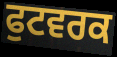
ਫੁਟਵਰਕ